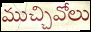
ముచ్చివోలు